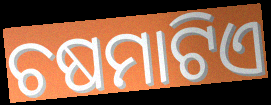
ଚଷମାଟିଏ